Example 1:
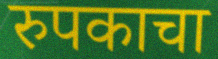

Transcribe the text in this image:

रुपकाचा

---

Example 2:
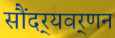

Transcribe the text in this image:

सौंदर्यवर्णन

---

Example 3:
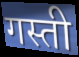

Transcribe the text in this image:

गस्ती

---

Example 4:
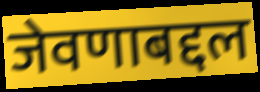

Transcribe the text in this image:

जेवणाबद्दल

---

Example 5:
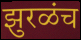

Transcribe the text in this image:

झुरळंच